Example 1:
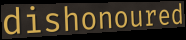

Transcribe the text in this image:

dishonoured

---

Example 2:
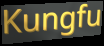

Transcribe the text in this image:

Kungfu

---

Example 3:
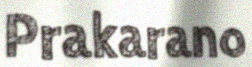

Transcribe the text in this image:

Prakarano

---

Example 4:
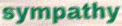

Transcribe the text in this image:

sympathy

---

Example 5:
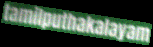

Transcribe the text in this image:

tamilputhakalayam